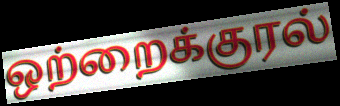
ஒற்றைக்குரல்